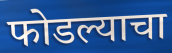
फोडल्याचा